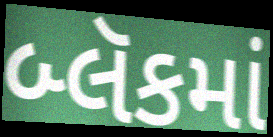
બ્લૅકમાં